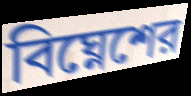
বিঘ্নেশের